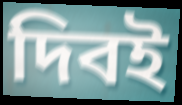
দিবই